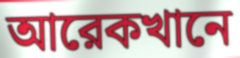
আরেকখানে